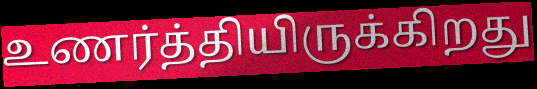
உணர்த்தியிருக்கிறது